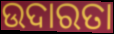
ଉଦାରତା